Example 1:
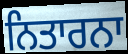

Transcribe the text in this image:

ਨਿਤਾਰਨਾ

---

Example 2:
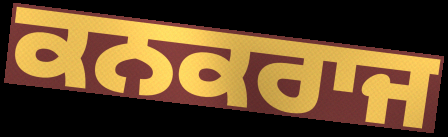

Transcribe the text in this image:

ਕਨਕਰਾਜ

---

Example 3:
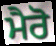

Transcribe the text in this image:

ਮੈਰੋ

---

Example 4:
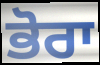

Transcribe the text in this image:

ਭੋਰਾ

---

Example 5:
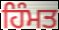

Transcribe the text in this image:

ਹਿੰਮਤ